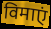
विमाएं